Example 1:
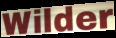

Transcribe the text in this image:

Wilder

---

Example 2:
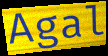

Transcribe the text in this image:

Agal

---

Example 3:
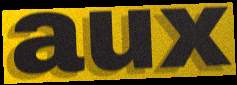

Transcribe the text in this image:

aux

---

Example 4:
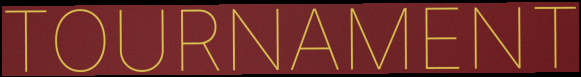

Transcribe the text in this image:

TOURNAMENT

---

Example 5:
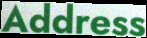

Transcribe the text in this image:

Address